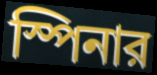
স্পিনার